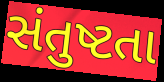
સંતુષ્ટતા